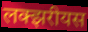
लक्झरीयस